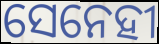
ସେନେହୀ